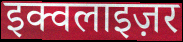
इक्वलाइज़र